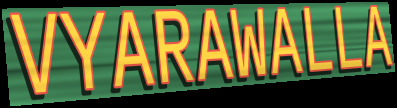
VYARAWALLA